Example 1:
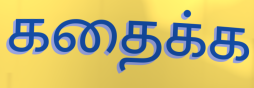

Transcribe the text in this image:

கதைக்க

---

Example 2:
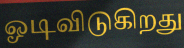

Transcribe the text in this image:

ஓடிவிடுகிறது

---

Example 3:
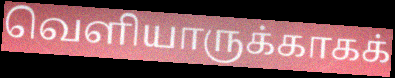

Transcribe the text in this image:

வெளியாருக்காகக்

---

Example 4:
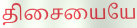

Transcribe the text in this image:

திசையையே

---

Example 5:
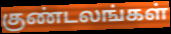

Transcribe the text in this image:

குண்டலங்கள்